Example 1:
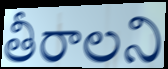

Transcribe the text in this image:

తీరాలని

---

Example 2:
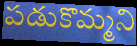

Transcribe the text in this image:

పడుకొమ్మని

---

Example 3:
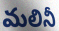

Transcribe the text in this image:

మలినీ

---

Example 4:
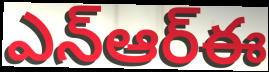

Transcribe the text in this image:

ఎన్ఆర్ఈ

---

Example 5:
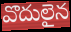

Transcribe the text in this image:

వొదులైన